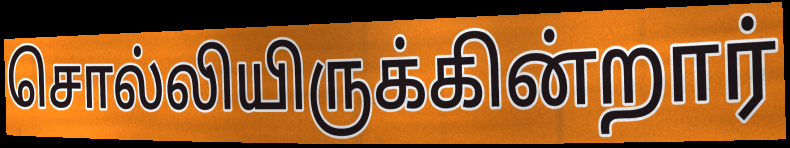
சொல்லியிருக்கின்றார்